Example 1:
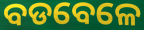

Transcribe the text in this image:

ବଡବେଳେ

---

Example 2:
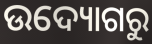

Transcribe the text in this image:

ଉଦ୍ୟୋଗରୁ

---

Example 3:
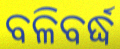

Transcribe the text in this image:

ବଳିବର୍ଦ୍ଧ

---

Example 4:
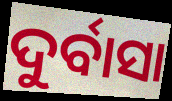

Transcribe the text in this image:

ଦୁର୍ବାସା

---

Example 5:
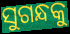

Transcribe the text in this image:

ସୁଗନ୍ଧକୁ